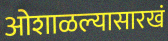
ओशाळल्यासारखं